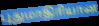
புதுமாதிரியான